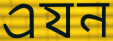
এযন